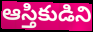
ఆస్తికుడిని